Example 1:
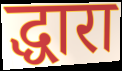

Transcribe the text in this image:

द्धारा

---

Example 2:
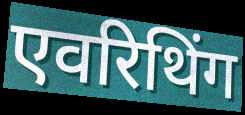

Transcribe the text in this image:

एवरिथिंग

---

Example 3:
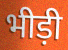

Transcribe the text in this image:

भीड़ी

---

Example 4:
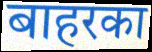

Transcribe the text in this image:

बाहरका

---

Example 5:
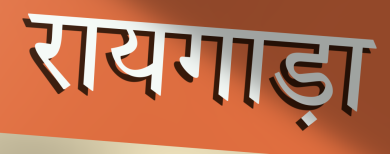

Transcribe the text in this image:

रायगाड़ा